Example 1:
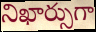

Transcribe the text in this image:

నిఖార్సుగా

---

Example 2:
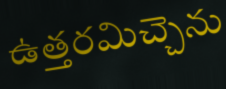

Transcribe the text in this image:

ఉత్తరమిచ్చెను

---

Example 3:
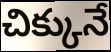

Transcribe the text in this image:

చిక్కునే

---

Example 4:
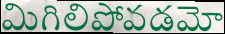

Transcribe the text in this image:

మిగిలిపోవడమో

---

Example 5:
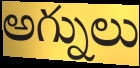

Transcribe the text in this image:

అగ్నులు